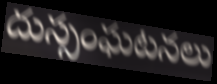
దుస్సంఘటనలు